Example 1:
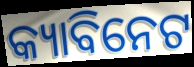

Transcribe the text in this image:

କ୍ୟାବିନେଟ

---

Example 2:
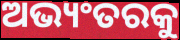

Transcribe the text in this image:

ଅଭ୍ୟଂତରକୁ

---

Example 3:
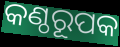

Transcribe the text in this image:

କଣ୍ଠରୂପକ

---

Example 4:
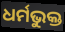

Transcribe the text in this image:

ଧର୍ମଭୁକ୍ତ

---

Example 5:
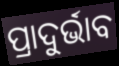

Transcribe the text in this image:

ପ୍ରାଦୁର୍ଭାବ